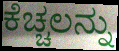
ಕೆಚ್ಚಲನ್ನು